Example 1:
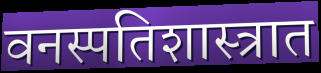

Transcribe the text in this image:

वनस्पतिशास्त्रात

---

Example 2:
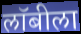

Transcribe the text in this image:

लॉबीला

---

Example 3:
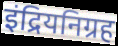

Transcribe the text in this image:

इंद्रियनिग्रह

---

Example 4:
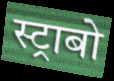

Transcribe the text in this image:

स्ट्राबो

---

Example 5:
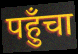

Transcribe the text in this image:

पहुँचा